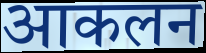
आकलन